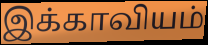
இக்காவியம்